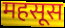
महसूस